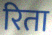
रिता